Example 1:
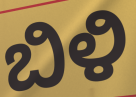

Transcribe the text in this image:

ಬಿಳಿ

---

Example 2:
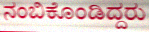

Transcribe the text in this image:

ನಂಬಿಕೊಂಡಿದ್ದರು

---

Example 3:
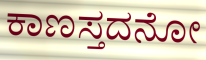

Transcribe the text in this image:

ಕಾಣಸ್ತದನೋ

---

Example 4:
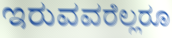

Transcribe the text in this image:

ಇರುವವರೆಲ್ಲರೂ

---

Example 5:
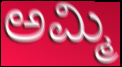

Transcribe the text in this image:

ಅಮ್ಮಿ